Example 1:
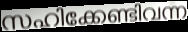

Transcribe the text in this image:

സഹിക്കേണ്ടിവന്ന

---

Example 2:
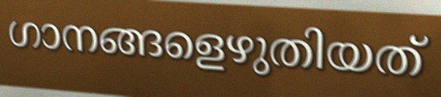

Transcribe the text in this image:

ഗാനങ്ങളെഴുതിയത്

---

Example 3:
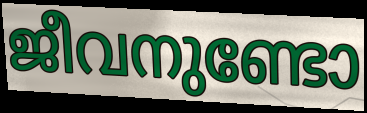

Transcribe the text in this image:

ജീവനുണ്ടോ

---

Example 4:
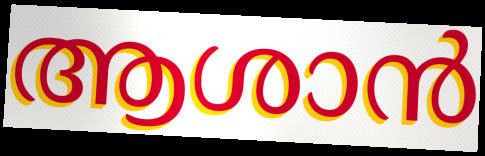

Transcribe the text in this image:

ആശാൻ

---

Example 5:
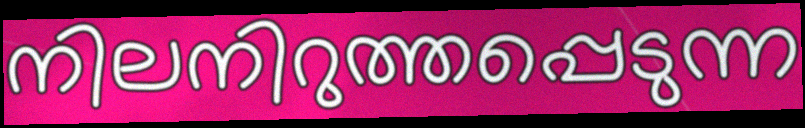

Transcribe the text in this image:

നിലനിറുത്തപ്പെടുന്ന